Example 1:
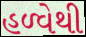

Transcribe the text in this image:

હળ્વેથી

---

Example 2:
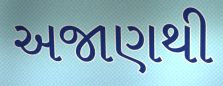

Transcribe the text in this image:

અજાણથી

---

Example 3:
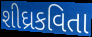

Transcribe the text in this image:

શીઘ્રકવિતા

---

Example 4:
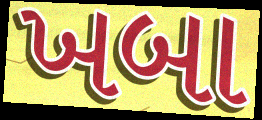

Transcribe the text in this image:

ખબા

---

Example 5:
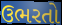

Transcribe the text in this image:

ઉભરતો